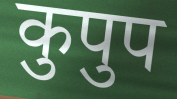
कुपुप